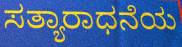
ಸತ್ಯಾರಾಧನೆಯ